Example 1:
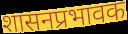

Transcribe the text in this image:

शासनप्रभावक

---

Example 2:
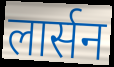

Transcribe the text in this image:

लार्सन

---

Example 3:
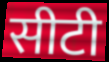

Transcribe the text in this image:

सीटी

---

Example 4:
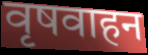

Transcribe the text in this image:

वृषवाहन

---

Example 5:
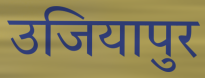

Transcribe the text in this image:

उजियापुर